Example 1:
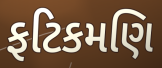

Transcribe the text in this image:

ફટિકમણિ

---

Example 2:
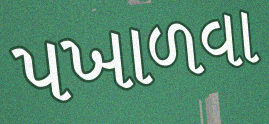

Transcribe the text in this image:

પખાળવા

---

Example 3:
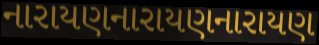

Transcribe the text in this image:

નારાયણનારાયણનારાયણ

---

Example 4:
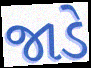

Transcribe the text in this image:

જાડે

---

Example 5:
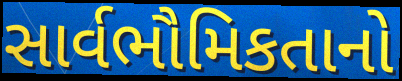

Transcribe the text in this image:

સાર્વભૌમિકતાનો